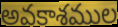
అవకాశముల